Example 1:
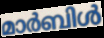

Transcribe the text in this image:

മാർബിൾ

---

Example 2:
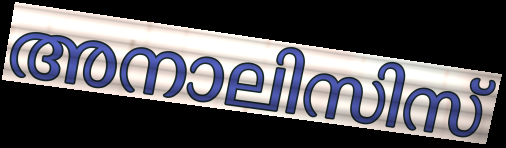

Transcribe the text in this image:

അനാലിസിസ്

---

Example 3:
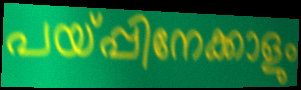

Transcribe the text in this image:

പയ്പ്പിനേക്കാളും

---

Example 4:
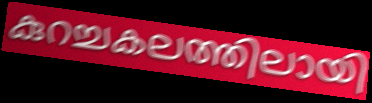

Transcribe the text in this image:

കുറച്ചകലത്തിലായി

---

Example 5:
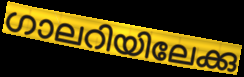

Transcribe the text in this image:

ഗാലറിയിലേക്കു